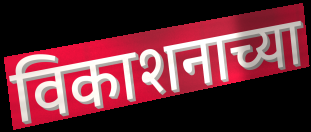
विकाशनाच्या